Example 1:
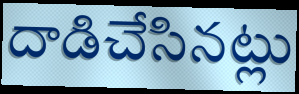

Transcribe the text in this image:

దాడిచేసినట్లు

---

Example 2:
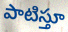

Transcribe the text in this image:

పాటిస్తూ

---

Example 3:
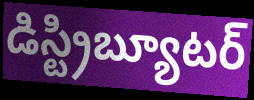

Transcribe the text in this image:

డిస్ట్రిబ్యూటర్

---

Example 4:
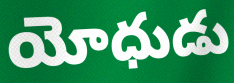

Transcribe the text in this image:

యోధుడు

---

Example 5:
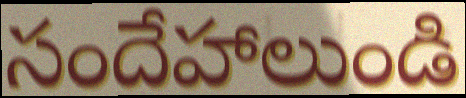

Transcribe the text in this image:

సందేహాలుండి